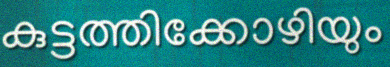
കുട്ടത്തിക്കോഴിയും